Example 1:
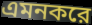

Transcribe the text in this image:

এমনকরে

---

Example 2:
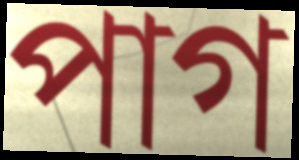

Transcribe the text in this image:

পাগ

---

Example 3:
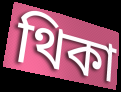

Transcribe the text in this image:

থিকা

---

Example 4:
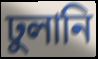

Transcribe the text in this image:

ঢুলানি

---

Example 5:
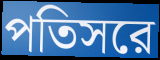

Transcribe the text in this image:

পতিসরে